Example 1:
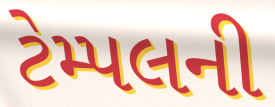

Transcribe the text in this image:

ટેમ્પલની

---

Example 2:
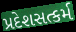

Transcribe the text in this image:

પ્રદેશસત્કર્મ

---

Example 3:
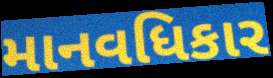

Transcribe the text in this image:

માનવધિકાર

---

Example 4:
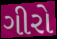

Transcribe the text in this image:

ગીરો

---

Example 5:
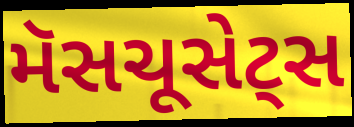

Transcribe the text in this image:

મૅસચૂસેટ્સ